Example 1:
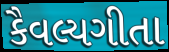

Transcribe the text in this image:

કૈવલ્યગીતા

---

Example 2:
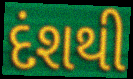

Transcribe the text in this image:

દંશથી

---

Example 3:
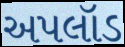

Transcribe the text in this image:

અપલૉડ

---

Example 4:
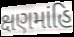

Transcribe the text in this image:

ક્ષણમાંહિ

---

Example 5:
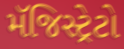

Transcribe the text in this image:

મૅજિસ્ટ્રેટો